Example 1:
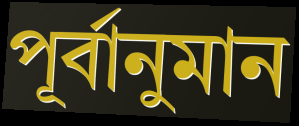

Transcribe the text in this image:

পূর্বানুমান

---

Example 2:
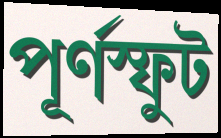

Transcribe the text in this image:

পূর্ণস্ফুট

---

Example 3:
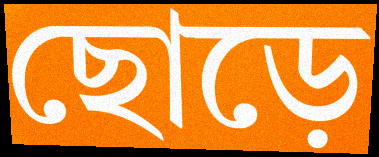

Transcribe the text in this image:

ছোড়ে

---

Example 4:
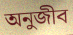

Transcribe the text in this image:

অনুজীব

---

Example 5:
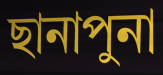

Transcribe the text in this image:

ছানাপুনা